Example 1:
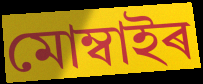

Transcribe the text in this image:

মোম্বাইৰ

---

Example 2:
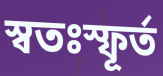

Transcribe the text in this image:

স্বতঃস্ফূৰ্ত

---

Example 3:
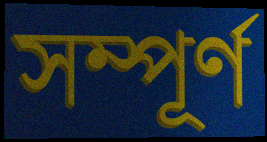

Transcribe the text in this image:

সম্পূৰ্ণ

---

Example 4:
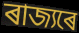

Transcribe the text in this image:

ৰাজ্যৰে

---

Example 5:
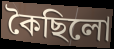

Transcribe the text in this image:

কৈছিলো